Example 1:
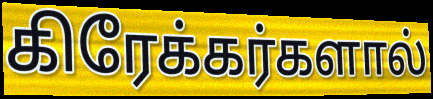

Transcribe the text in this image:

கிரேக்கர்களால்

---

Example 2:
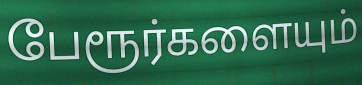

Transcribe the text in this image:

பேரூர்களையும்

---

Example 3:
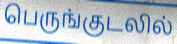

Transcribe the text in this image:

பெருங்குடலில்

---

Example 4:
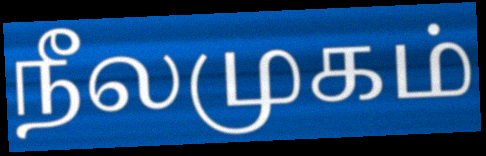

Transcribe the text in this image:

நீலமுகம்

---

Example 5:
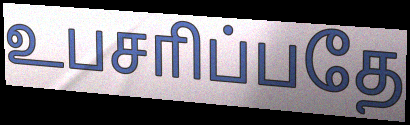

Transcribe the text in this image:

உபசரிப்பதே